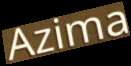
Azima